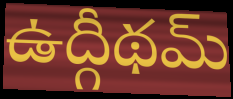
ఉద్గీథమ్